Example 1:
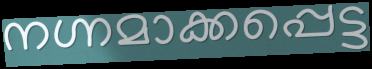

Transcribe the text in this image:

നഗ്നമാക്കപ്പെട്ട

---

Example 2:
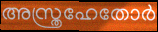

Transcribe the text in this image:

അസ്ത്രഹേതോർ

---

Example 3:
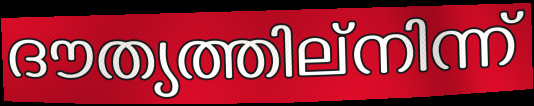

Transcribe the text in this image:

ദൗത്യത്തില്നിന്ന്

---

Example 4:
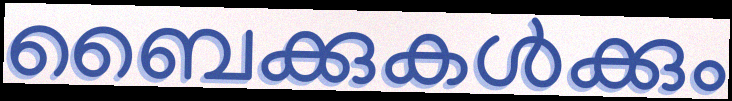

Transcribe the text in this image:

ബൈക്കുകൾക്കും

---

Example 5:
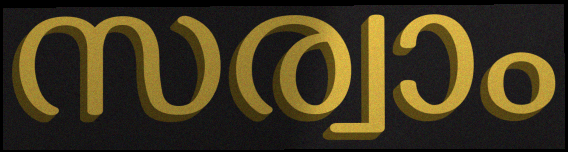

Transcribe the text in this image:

സര്വാം